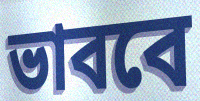
ভাববে